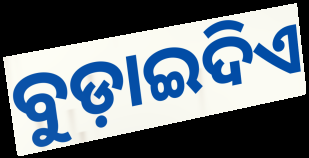
ବୁଡ଼ାଇଦିଏ